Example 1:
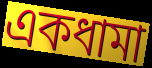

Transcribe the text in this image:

একধামা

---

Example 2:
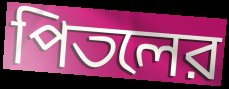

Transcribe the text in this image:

পিতলের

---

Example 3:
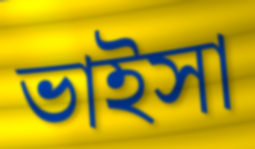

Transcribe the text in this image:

ভাইসা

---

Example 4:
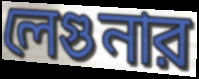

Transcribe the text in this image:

লেগুনার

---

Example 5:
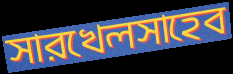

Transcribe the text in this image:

সারখেলসাহেব